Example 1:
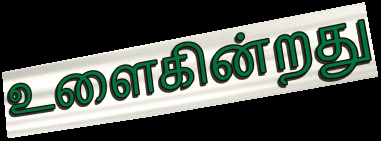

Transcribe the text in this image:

உளைகின்றது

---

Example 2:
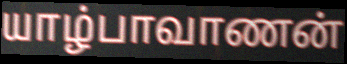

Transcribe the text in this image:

யாழ்பாவாணன்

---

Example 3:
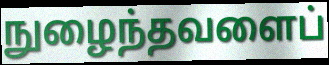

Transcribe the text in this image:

நுழைந்தவளைப்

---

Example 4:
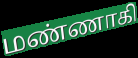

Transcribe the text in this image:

மண்ணாகி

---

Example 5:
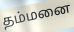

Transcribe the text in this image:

தம்மனை